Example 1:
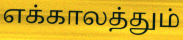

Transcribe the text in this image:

எக்காலத்தும்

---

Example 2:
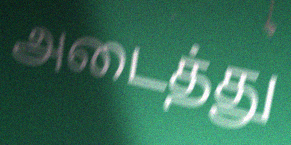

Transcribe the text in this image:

அடைத்து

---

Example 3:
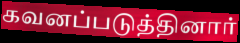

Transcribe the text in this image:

கவனப்படுத்தினார்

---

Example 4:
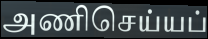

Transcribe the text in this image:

அணிசெய்யப்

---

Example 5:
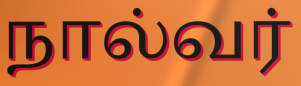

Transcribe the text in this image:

நால்வர்